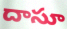
దాసూ